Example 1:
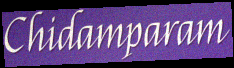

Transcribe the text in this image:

Chidamparam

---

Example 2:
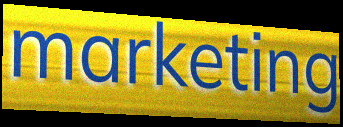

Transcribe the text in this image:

marketing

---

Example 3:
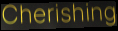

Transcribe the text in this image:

Cherishing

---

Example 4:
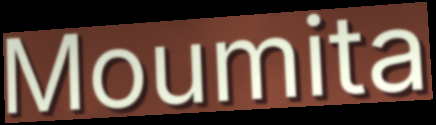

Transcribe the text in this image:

Moumita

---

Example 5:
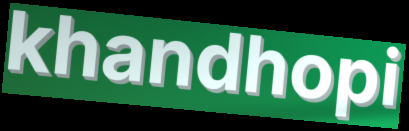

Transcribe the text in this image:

khandhopi